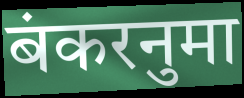
बंकरनुमा